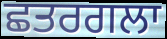
ਛਤਰਗਲਾ